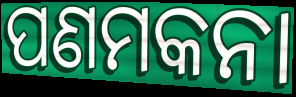
ପଣମକନା